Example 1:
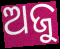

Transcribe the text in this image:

ଅଜୁ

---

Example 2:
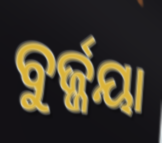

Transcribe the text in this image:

ବୁର୍ଜ୍ଜୟା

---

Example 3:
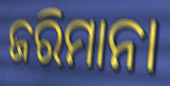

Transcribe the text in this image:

ଜରିମାନା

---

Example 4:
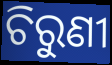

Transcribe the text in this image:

ଚିରୁଣୀ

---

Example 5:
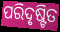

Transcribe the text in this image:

ପରିଦୃଷ୍ଟିତ